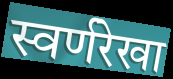
स्वर्णरेखा